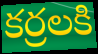
కర్రలకి